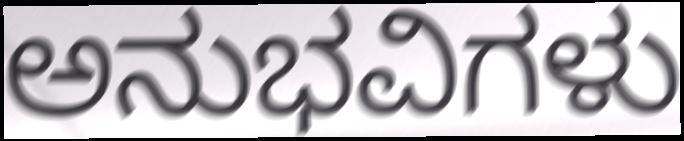
ಅನುಭವಿಗಳು